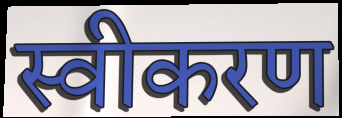
स्वीकरण